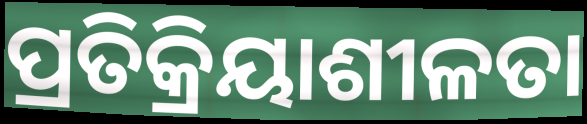
ପ୍ରତିକ୍ରିୟାଶୀଳତା